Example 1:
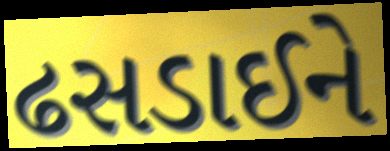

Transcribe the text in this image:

ઢસડાઈને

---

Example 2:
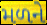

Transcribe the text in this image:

મળને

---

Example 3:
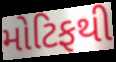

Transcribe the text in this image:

મોટિફથી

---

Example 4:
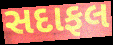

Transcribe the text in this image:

સદાફલ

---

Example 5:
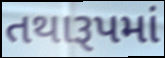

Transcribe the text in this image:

તથારૂપમાં